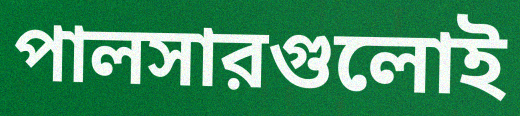
পালসারগুলোই